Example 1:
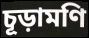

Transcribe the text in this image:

চূড়ামণি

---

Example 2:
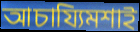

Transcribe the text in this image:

আচায্যিমশাই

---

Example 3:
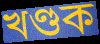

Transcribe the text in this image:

খণ্ডক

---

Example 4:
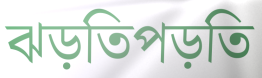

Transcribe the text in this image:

ঝড়তিপড়তি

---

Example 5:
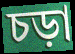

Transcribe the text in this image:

চড়া